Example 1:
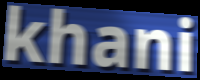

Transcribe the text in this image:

khani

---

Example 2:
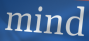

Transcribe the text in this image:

mind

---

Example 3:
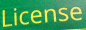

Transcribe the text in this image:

License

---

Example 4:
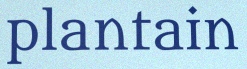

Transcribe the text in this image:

plantain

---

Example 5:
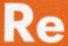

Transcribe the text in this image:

Re